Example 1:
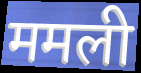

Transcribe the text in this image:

ममली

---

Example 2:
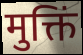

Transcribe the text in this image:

मुक्तिं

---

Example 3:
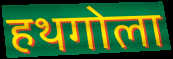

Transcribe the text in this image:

हथगोला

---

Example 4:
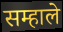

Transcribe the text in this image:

सम्हाले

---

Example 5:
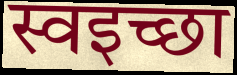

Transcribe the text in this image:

स्वइच्छा